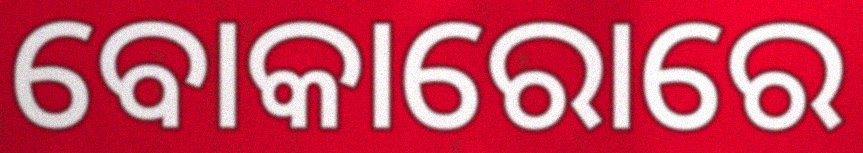
ବୋକାରୋରେ